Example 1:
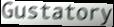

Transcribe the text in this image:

Gustatory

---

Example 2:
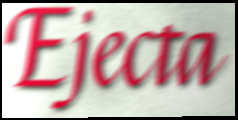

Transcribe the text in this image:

Ejecta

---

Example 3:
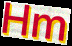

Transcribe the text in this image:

Hm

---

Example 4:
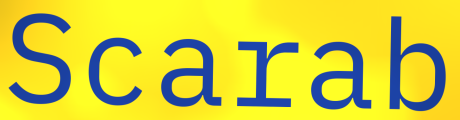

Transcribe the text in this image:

Scarab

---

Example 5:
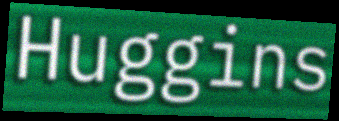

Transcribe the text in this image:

Huggins